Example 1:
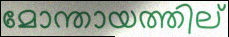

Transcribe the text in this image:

മോന്തായത്തില്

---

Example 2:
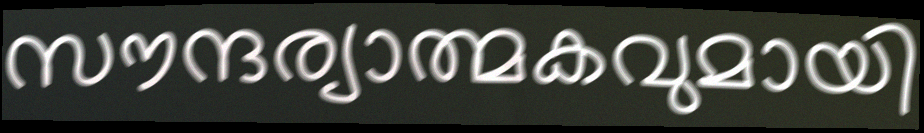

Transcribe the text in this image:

സൗന്ദര്യാത്മകവുമായി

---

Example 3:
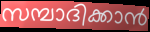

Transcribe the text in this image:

സമ്പാദിക്കാൻ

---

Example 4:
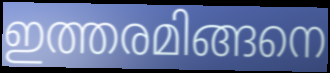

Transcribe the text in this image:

ഇത്തരമിങ്ങനെ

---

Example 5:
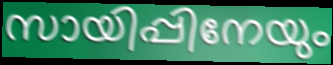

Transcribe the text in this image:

സായിപ്പിനേയും